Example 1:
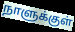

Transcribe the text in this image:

நாளுக்குள்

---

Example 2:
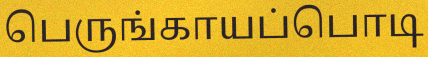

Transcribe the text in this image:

பெருங்காயப்பொடி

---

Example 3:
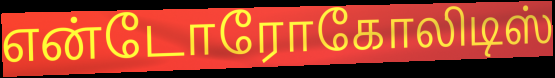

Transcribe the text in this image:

என்டோரோகோலிடிஸ்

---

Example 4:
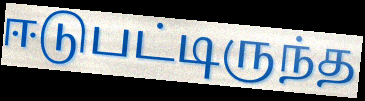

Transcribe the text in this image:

ஈடுபட்டிருந்த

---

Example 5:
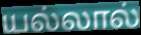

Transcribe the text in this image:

யல்லால்